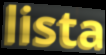
lista